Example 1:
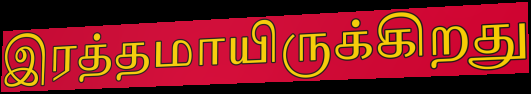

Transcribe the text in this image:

இரத்தமாயிருக்கிறது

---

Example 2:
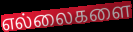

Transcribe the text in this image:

எல்லைகளை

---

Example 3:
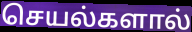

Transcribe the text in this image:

செயல்களால்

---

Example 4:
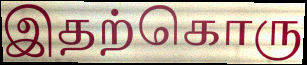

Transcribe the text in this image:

இதற்கொரு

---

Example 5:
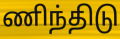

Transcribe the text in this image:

ணிந்திடு